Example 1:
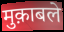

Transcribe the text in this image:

मुक़ाबले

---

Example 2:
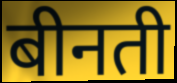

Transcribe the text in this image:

बीनती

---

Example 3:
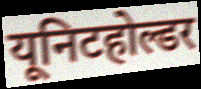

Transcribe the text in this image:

यूनिटहोल्डर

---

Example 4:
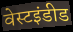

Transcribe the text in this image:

वेस्टइंडीड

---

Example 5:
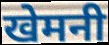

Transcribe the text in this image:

खेमनी